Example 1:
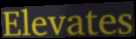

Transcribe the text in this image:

Elevates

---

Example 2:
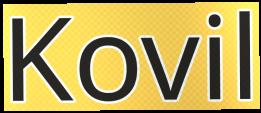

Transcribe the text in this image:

Kovil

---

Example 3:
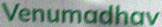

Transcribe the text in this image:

Venumadhav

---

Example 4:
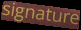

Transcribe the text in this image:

signature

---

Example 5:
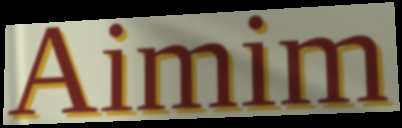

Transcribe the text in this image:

Aimim